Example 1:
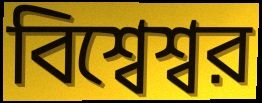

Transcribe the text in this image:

বিশ্বেশ্বর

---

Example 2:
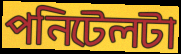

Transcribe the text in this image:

পনিটেলটা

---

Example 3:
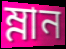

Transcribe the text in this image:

ম্নান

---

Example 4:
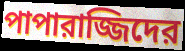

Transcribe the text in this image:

পাপারাজ্জিদের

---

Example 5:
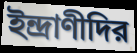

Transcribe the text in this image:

ইন্দ্রাণীদির